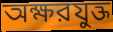
অক্ষরযুক্ত